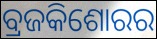
ବ୍ରଜକିଶୋରର